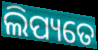
ଲିପ୍ୟତେ